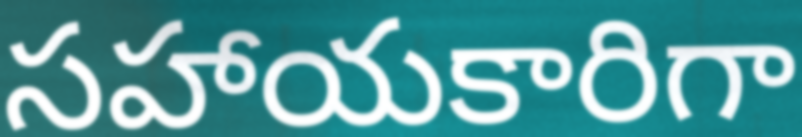
సహాయకారిగా